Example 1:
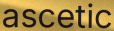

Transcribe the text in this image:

ascetic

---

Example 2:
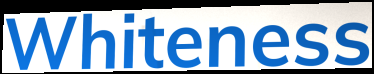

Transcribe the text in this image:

Whiteness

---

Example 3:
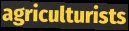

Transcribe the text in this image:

agriculturists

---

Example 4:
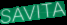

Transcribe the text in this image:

SAVITA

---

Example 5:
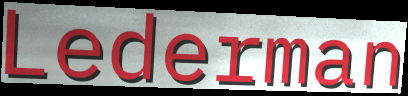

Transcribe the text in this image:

Lederman